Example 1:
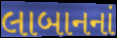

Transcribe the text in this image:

લાબાનનાં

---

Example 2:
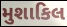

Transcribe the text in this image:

મુશાકિલ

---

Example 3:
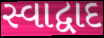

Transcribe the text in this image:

સ્વાદ્વાદ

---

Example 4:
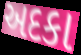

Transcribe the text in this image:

અદકા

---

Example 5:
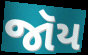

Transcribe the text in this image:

જૉય